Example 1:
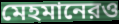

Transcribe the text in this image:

মেহমানেরও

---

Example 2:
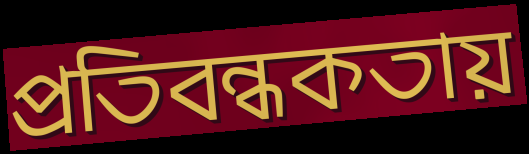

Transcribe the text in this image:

প্রতিবন্ধকতায়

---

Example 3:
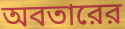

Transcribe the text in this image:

অবতারের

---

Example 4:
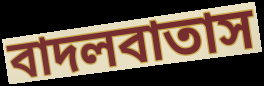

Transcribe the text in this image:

বাদলবাতাস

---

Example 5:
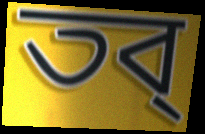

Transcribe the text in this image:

তব্